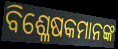
ବିଶ୍ଳେଷକମାନଙ୍କ